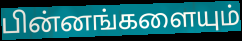
பின்னங்களையும்